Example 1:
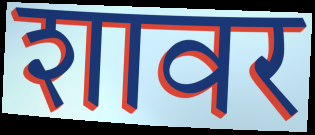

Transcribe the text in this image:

शावर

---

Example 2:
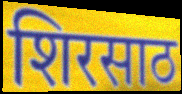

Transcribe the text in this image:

शिरसाठ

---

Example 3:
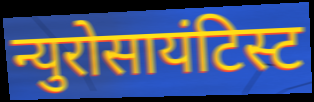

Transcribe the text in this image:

न्युरोसायंटिस्ट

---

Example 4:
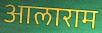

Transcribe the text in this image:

आलाराम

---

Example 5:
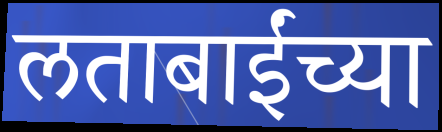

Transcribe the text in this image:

लताबाईंच्या